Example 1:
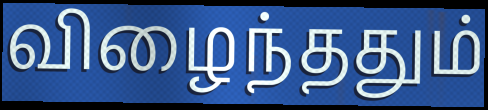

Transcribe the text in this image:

விழைந்ததும்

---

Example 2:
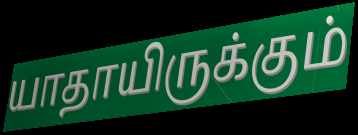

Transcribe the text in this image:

யாதாயிருக்கும்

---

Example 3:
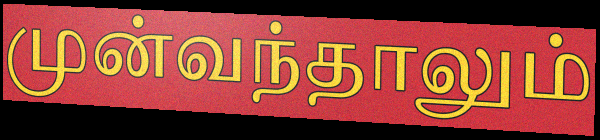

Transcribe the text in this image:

முன்வந்தாலும்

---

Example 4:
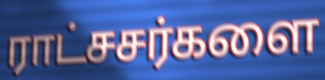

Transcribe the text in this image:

ராட்சசர்களை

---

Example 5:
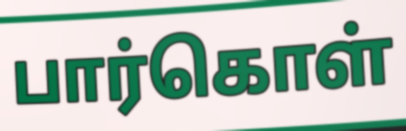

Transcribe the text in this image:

பார்கொள்